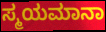
ಸ್ಮಯಮಾನಾ